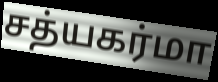
சத்யகர்மா